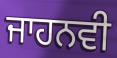
ਜਾਹਨਵੀ